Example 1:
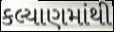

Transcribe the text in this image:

કલ્યાણમાંથી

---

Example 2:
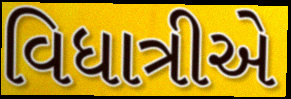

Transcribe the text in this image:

વિધાત્રીએ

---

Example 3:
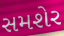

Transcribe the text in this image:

સમશેર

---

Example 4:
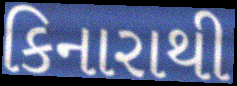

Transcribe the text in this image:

કિનારાથી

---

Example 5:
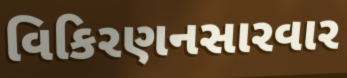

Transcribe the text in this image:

વિકિરણનસારવાર